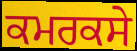
ਕਮਰਕਸੇ